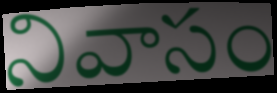
నివాసం